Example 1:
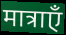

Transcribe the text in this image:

मात्राएँ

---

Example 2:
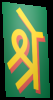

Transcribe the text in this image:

श्रे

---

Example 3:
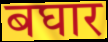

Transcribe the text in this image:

बघार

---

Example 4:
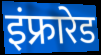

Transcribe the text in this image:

इंफ्रारेड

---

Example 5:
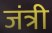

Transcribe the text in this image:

जंत्री